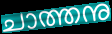
ചാത്തനു